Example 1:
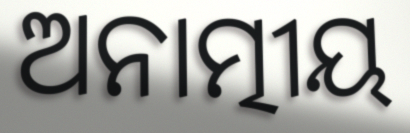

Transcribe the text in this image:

ଅନାତ୍ମୀୟ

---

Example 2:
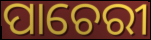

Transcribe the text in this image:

ପାଚେରୀ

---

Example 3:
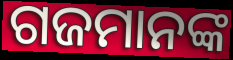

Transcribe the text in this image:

ଗଜମାନଙ୍କ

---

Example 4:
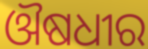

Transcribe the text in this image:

ଔଷଧୀର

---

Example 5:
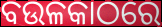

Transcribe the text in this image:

ବଉଳକାଠରେ